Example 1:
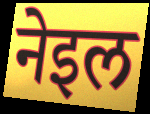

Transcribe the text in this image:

नेइल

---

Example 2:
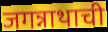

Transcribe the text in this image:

जगन्नाथाची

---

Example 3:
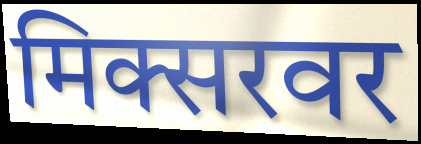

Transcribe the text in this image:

मिक्‍सरवर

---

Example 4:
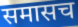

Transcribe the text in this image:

समासच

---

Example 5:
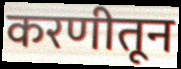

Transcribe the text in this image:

करणीतून